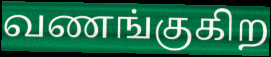
வணங்குகிற